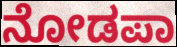
ನೋಡಪಾ